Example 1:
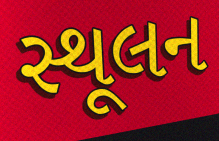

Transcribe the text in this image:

સ્થૂલન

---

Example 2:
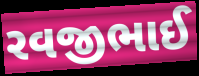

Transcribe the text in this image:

રવજીભાઈ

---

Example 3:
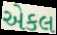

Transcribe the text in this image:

એકલ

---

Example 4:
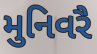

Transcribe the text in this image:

મુનિવરૈ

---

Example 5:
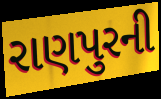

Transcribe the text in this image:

રાણપુરની